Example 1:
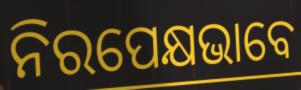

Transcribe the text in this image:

ନିରପେକ୍ଷଭାବେ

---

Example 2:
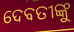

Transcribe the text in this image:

ଦେବତୀଙ୍କୁ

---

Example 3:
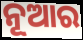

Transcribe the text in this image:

ନୂଆର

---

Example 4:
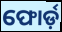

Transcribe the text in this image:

ଫୋର୍ଡ଼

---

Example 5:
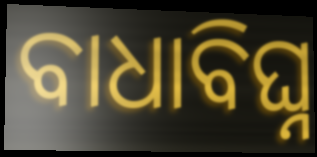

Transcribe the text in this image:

ବାଧାବିଘ୍ନ